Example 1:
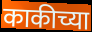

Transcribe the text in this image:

काकीच्या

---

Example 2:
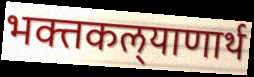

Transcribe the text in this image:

भक्तकल्याणार्थ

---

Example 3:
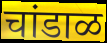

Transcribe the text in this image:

चांडाळ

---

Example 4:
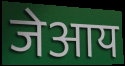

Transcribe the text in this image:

जेआय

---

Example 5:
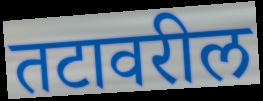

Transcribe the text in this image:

तटावरील